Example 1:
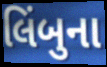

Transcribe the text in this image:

લિંબુના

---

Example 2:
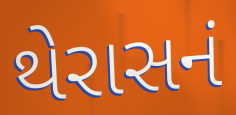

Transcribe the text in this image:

થેરાસનં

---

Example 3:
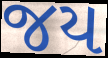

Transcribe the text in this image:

જય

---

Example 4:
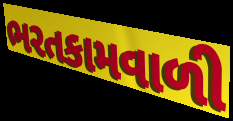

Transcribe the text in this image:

ભરતકામવાળી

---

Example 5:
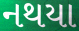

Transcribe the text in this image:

નથયા